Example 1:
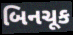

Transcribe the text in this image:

બિનચૂક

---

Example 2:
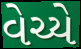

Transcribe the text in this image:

વેચ્યે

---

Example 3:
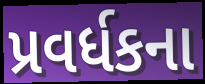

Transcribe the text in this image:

પ્રવર્ધકના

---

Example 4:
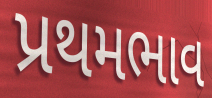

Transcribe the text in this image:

પ્રથમભાવ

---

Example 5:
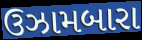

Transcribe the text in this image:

ઉઝામબારા